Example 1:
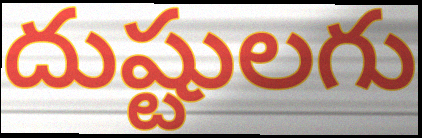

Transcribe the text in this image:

దుష్టులగు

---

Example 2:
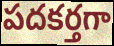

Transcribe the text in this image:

పదకర్తగా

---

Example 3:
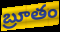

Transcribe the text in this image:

బ్రూతం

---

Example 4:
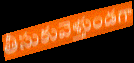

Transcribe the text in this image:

తీసుకువెళ్తుండగా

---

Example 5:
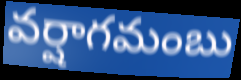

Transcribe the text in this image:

వర్షాగమంబు